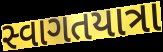
સ્વાગતયાત્રા